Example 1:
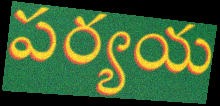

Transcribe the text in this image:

పర్యయ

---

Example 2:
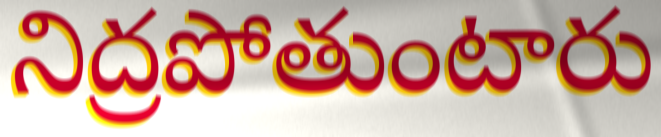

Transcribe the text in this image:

నిద్రపోతుంటారు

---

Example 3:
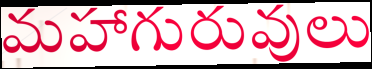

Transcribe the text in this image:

మహాగురువులు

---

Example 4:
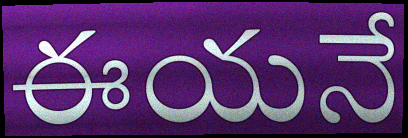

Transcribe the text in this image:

ఈయనే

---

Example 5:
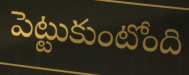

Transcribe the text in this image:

పెట్టుకుంటోంది